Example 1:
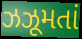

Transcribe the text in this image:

ઝઝૂમતાં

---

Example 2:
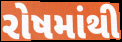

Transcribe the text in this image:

રોષમાંથી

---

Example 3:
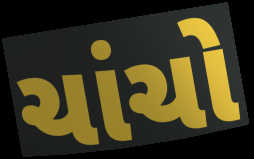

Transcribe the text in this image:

ચાંચો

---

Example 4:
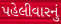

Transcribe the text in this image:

પહેલીવારનું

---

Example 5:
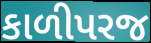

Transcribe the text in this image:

કાળીપરજ